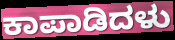
ಕಾಪಾಡಿದಳು